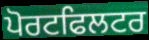
ਪੋਰਟਫਿਲਟਰ